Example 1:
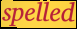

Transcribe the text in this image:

spelled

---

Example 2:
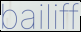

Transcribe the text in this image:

bailiff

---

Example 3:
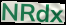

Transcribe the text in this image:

NRdx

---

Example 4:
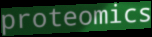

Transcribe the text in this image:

proteomics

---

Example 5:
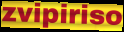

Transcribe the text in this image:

zvipiriso